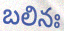
బలినః